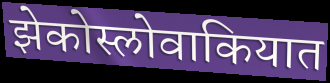
झेकोस्लोवाकियात